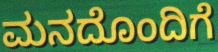
ಮನದೊಂದಿಗೆ